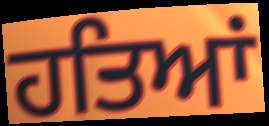
ਹਤਿਆਂ